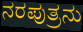
ನರಪುತ್ರನು